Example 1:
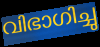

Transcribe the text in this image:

വിഭാഗിച്ചു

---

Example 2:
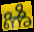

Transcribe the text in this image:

ഷ്ണു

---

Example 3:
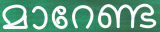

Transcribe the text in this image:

മാറേണ്ട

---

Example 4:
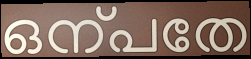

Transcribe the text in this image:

ഒന്പതേ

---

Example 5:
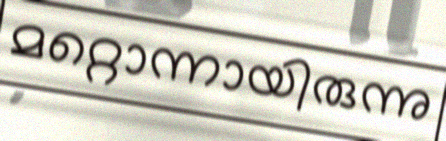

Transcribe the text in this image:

മറ്റൊന്നായിരുന്നു